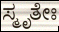
ಸ್ಮೃತೇಃ